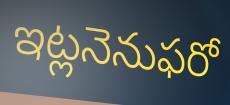
ఇట్లనెనుఫరో